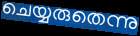
ചെയ്യരുതെന്നു